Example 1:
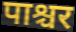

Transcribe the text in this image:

पाश्चर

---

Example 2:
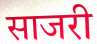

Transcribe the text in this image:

साजरी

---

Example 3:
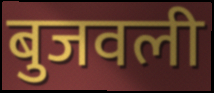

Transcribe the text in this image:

बुजवली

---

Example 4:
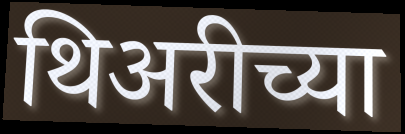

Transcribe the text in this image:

थिअरीच्या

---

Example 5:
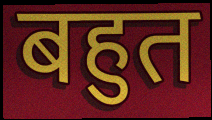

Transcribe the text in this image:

बहुत